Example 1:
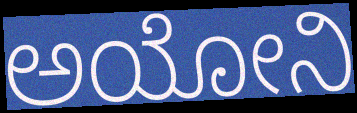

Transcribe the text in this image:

ಅಯೋನಿ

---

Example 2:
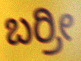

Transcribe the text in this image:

ಬರ್ರೀ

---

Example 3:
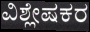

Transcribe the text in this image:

ವಿಶ್ಲೇಷಕರ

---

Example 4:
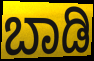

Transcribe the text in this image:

ಬಾಡಿ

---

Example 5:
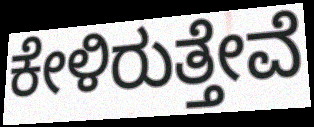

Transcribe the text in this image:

ಕೇಳಿರುತ್ತೇವೆ